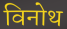
विनोथ